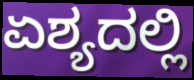
ಏಶ್ಯದಲ್ಲಿ